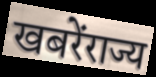
खबरेंराज्य